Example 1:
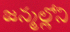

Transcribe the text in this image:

జన్మల్లోని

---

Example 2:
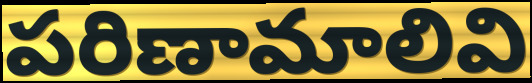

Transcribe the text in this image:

పరిణామాలివి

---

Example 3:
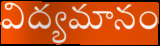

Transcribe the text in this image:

విద్యమానం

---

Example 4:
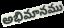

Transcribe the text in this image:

అభిమానము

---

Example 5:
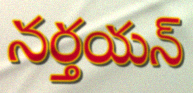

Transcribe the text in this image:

నర్తయన్